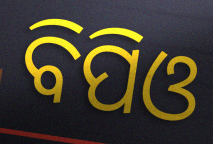
ବିପିଓ